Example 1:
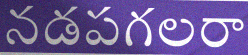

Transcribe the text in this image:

నడపగలరా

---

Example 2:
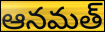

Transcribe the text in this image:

ఆనమత్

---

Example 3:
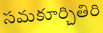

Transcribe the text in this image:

సమకూర్చితిరి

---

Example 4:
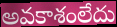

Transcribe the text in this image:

అవకాశంలేదు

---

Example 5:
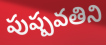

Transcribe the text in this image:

పుష్పవతిని